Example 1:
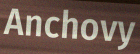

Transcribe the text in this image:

Anchovy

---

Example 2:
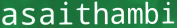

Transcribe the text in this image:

asaithambi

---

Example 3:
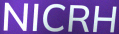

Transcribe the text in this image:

NICRH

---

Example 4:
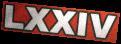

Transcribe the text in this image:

LXXIV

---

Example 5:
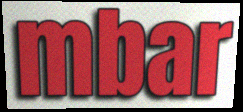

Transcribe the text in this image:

mbar